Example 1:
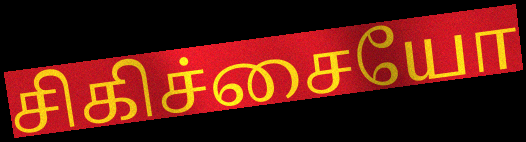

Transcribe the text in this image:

சிகிச்சையோ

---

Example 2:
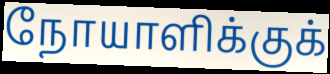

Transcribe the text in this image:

நோயாளிக்குக்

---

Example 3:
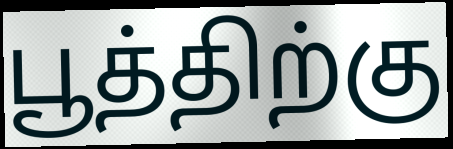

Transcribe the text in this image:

பூத்திற்கு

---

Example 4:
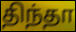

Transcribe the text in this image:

திந்தா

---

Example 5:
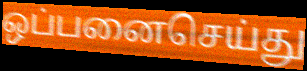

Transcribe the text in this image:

ஒப்பனைசெய்து